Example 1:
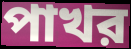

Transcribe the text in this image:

পাখর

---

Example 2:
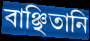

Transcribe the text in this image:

বাঞ্ছিতানি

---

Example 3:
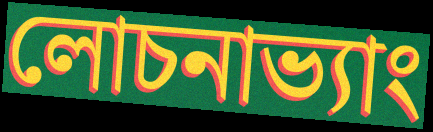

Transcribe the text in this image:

লোচনাভ্যাং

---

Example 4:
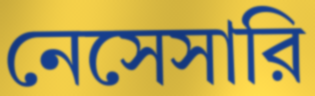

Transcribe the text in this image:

নেসেসারি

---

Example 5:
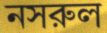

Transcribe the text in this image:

নসরুল